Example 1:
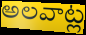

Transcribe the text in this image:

అలవాట్ల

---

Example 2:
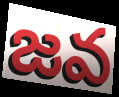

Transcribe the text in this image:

జవ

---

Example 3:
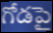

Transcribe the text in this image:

గోడపై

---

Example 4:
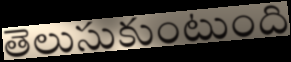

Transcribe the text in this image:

తెలుసుకుంటుంది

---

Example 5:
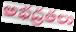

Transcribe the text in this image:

అభద్రతలు